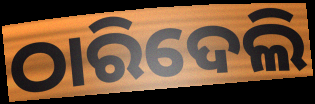
ଠାରିଦେଲି